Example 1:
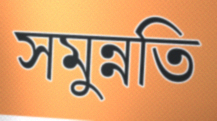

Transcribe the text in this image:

সমুন্নতি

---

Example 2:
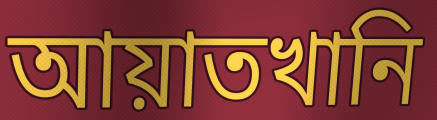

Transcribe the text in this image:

আয়াতখানি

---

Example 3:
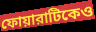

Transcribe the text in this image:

ফোয়ারাটিকেও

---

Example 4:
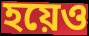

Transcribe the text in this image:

হয়েও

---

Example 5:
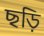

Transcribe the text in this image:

ছড়ি